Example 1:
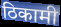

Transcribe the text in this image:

ठिकामी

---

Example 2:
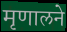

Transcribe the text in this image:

मृणालने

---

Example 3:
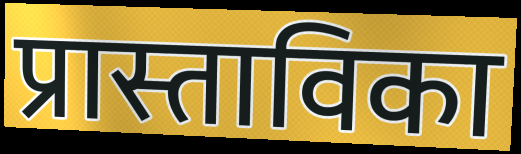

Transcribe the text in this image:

प्रास्ताविका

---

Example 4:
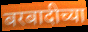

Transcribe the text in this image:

बरबादीच्या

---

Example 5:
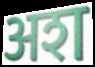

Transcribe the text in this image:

अश